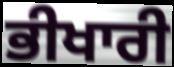
ਭੀਖਾਰੀ